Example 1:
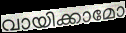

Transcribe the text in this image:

വായിക്കാമോ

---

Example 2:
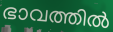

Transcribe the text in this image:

ഭാവത്തിൽ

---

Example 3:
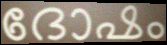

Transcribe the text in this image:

ദോഷം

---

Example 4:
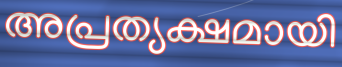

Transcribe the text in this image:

അപ്രത്യക്ഷമായി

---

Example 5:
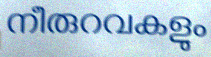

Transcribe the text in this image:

നീരുറവകളും